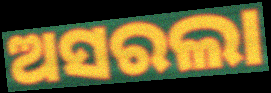
ଅସରଲା